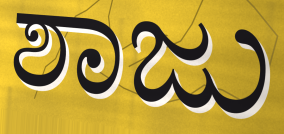
ಶಾಜು